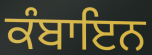
ਕੰਬਾਇਨ